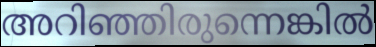
അറിഞ്ഞിരുന്നെങ്കിൽ